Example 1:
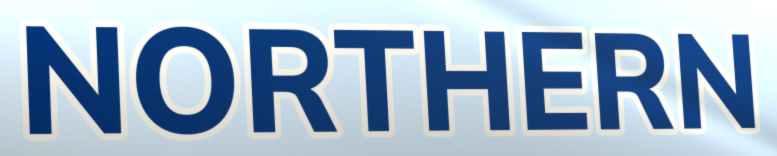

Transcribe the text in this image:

NORTHERN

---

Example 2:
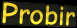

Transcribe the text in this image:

Probir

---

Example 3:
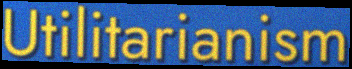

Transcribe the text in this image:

Utilitarianism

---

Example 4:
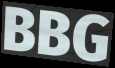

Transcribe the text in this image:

BBG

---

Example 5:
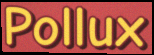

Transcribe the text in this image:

Pollux